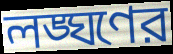
লঙ্ঘণের